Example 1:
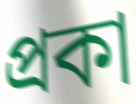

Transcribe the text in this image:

প্রকা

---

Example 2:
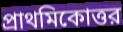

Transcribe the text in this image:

প্রাথমিকোত্তর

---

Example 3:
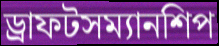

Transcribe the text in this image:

ড্রাফটসম্যানশিপ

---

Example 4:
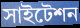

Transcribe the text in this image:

সাইটেশন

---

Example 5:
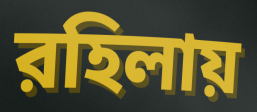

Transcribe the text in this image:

রহিলায়